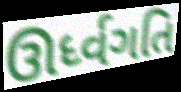
ઊર્ધ્વગતિ